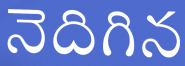
నెదిగిన